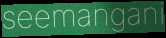
seemangani